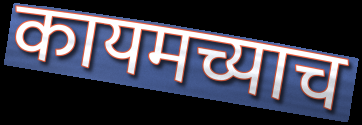
कायमच्याच